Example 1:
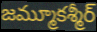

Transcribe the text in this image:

జమ్మూకశ్మీర్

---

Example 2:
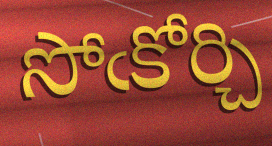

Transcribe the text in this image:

సోఁకోర్చి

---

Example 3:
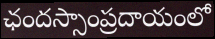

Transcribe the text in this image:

ఛందస్సాంప్రదాయంలో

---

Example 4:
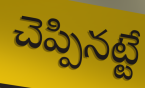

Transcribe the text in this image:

చెప్పినట్టే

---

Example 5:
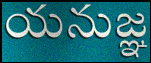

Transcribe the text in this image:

యనుజ్ఞ